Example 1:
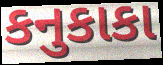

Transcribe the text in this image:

કનુકાકા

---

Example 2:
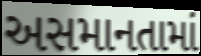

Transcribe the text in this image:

અસમાનતામાં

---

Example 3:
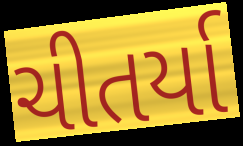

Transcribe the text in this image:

ચીતર્યા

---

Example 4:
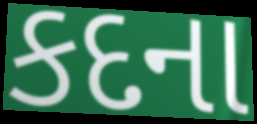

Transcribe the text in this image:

કદના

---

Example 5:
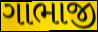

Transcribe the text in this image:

ગાભાજી